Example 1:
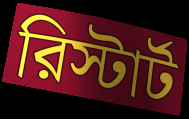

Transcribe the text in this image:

রিস্টার্ট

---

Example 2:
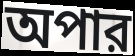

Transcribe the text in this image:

অপার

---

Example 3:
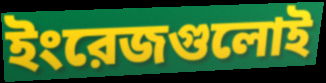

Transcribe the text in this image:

ইংরেজগুলোই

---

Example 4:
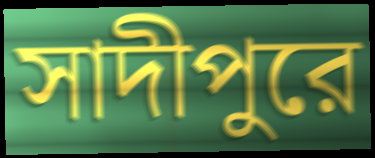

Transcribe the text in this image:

সাদীপুরে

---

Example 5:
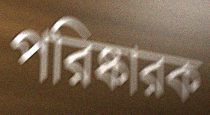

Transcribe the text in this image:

পরিষ্কারক